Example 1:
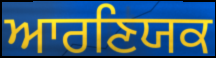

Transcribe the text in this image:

ਆਰਣਿਯਕ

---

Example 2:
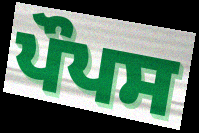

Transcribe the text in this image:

ਪੌਪਸ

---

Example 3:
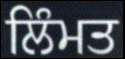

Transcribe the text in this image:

ਲਿੰਮਤ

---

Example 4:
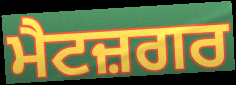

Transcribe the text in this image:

ਮੈਟਜ਼ਗਰ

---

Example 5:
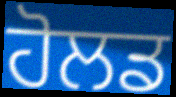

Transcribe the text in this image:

ਹੋਲਡ